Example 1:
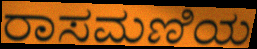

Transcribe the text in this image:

ರಾಸಮಣಿಯ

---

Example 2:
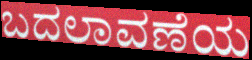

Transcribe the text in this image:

ಬದಲಾವಣೆಯ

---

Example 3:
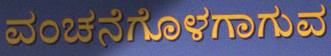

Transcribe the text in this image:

ವಂಚನೆಗೊಳಗಾಗುವ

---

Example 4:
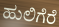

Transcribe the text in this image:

ಹುಲಿಗೆರೆ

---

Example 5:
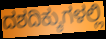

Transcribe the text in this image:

ದಶದಿಕ್ಕುಗಳಲ್ಲಿ